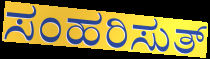
ಸಂಹರಿಸುತ್